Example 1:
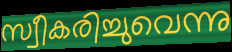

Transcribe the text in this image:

സ്വീകരിച്ചുവെന്നു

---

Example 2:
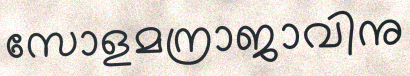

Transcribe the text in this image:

സോളമന്രാജാവിനു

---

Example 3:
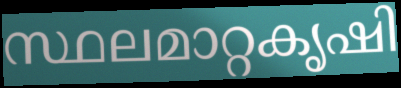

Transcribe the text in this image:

സ്ഥലമാറ്റകൃഷി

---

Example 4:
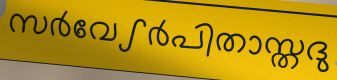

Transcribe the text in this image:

സർവേഽർപിതാസ്തദു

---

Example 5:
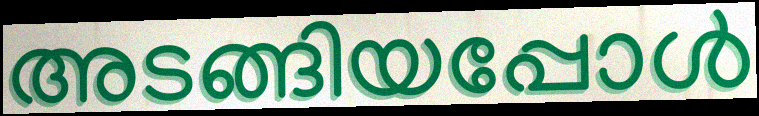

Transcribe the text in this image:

അടങ്ങിയപ്പോൾ